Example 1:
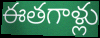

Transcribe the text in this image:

ఈతగాళ్లు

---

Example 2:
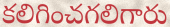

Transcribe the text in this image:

కలిగించగలిగారు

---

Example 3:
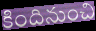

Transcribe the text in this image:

కిందినుంచి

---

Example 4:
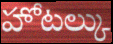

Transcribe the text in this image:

హోటల్కు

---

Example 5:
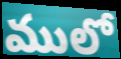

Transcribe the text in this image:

ములో